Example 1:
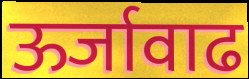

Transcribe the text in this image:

ऊर्जावाढ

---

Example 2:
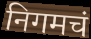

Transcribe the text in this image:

निगमचं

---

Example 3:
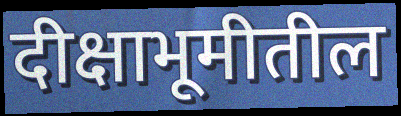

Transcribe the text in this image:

दीक्षाभूमीतील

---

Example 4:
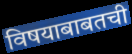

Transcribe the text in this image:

विषयाबाबतची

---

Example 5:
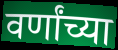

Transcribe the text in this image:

वर्णांच्या